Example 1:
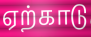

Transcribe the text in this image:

ஏற்காடு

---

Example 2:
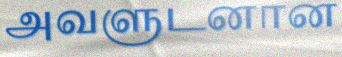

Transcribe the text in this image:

அவளுடனான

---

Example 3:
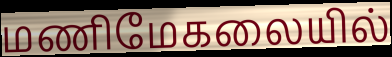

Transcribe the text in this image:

மணிமேகலையில்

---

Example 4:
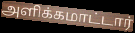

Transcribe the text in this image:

அளிக்கமாட்டார்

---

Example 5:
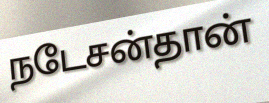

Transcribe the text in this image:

நடேசன்தான்